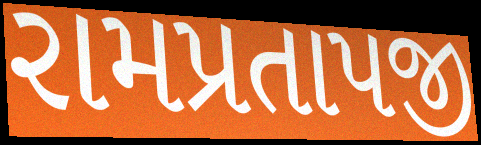
રામપ્રતાપજી